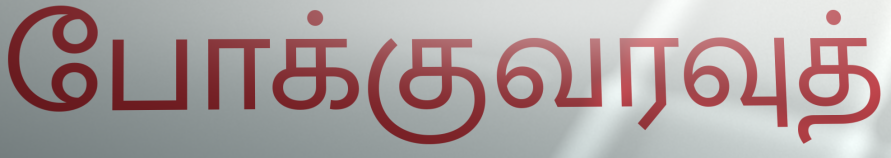
போக்குவரவுத்